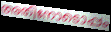
അതിനോടൊപ്പം